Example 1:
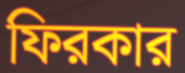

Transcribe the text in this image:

ফিরকার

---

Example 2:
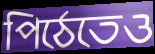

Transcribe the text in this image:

পিঠেতেও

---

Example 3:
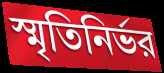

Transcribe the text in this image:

স্মৃতিনির্ভর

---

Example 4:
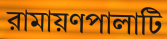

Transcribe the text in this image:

রামায়ণপালাটি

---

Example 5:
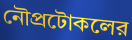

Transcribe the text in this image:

নৌপ্রটোকলের